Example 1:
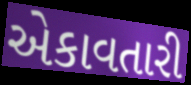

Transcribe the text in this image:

એકાવતારી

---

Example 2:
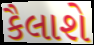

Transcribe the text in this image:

કૈલાશે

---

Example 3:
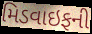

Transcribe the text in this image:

મિડવાઇફની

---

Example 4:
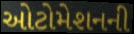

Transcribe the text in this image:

ઓટોમેશનની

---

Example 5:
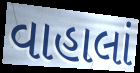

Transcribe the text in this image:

વાહાલાં